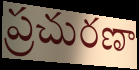
ప్రచురణా